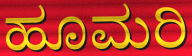
ಹೂಮರಿ